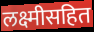
लक्ष्मीसहित